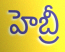
హెబ్రీ